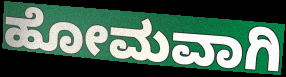
ಹೋಮವಾಗಿ